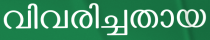
വിവരിച്ചതായ